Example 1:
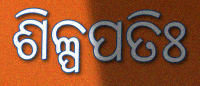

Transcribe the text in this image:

ଶିଳ୍ପପତିଃ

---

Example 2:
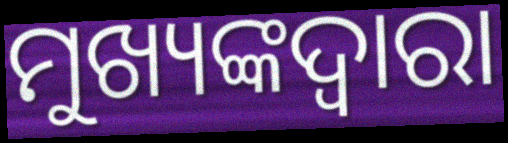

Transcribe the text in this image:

ମୁଖ୍ୟଙ୍କଦ୍ଵାରା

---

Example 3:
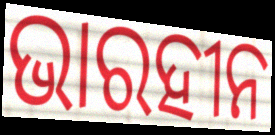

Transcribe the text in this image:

ଭାରହୀନ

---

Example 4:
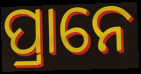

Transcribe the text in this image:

ପ୍ରାନେ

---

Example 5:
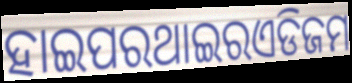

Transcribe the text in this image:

ହାଇପରଥାଇରଏଡିଜମ